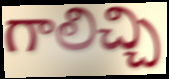
గాలిచ్చి